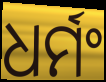
ଧର୍ମଂ